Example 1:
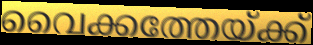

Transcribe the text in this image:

വൈക്കത്തേയ്ക്ക്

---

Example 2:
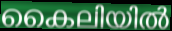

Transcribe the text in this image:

കൈലിയിൽ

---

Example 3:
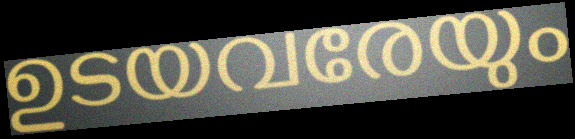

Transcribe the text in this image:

ഉടയവരേയും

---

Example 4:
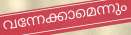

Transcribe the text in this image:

വന്നേക്കാമെന്നും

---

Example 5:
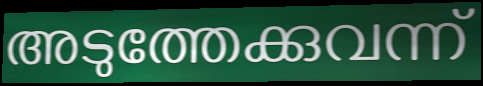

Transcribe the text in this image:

അടുത്തേക്കുവന്ന്